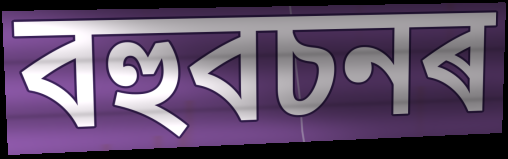
বহুবচনৰ